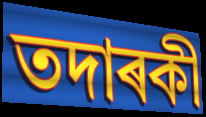
তদাৰকী